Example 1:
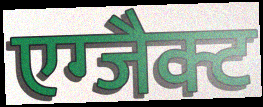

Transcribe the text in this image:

एग्जैक्ट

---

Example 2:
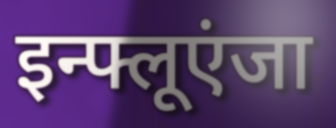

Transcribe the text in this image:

इन्फ्लूएंजा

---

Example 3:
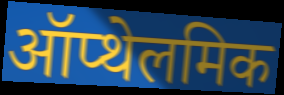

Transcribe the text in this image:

ऑप्थेलमिक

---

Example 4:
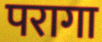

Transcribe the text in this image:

परागा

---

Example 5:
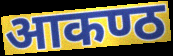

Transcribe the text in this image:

आकण्ठ